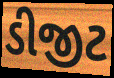
ડીજીટ